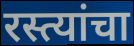
रस्त्यांचा